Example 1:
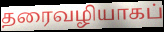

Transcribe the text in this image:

தரைவழியாகப்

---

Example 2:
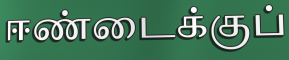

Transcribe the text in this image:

ஈண்டைக்குப்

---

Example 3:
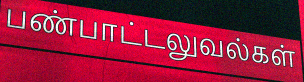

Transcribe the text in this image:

பண்பாட்டலுவல்கள்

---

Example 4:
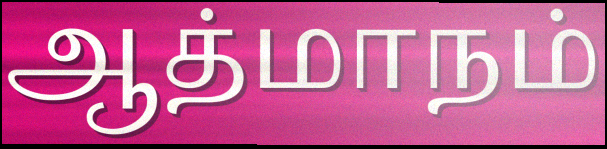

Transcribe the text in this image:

ஆத்மாநம்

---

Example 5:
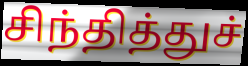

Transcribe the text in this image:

சிந்தித்துச்